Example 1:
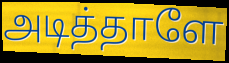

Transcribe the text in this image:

அடித்தாளே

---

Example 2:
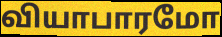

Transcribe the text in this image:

வியாபாரமோ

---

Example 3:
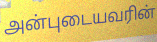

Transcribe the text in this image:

அன்புடையவரின்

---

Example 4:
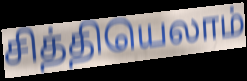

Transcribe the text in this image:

சித்தியெலாம்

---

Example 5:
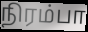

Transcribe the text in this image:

நிரம்பா